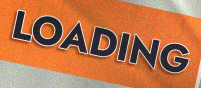
LOADING